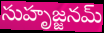
సుహృజ్జనమ్